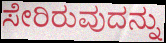
ಸೇರಿರುವುದನ್ನು